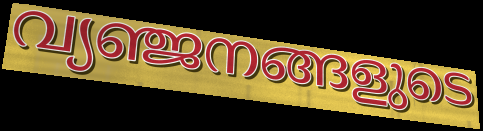
വ്യഞ്ജനങ്ങളുടെ